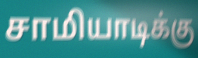
சாமியாடிக்கு